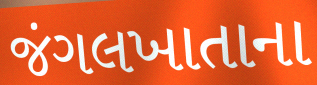
જંગલખાતાના